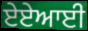
ਏਏਆਈ